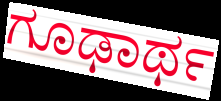
ಗೂಢಾರ್ಥ